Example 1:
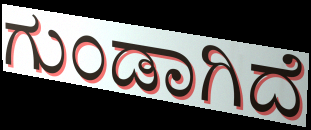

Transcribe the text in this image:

ಗುಂಡಾಗಿದೆ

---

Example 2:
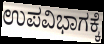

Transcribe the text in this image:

ಉಪವಿಭಾಗಕ್ಕೆ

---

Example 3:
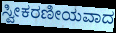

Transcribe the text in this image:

ಸ್ವೀಕರಣೀಯವಾದ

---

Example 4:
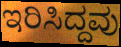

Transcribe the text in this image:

ಇರಿಸಿದ್ದವು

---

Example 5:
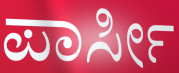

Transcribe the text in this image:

ಪಾರ್ಸೀ